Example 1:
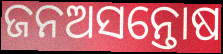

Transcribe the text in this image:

ଜନଅସନ୍ତୋଷ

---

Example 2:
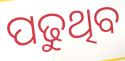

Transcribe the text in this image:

ପଢୁଥିବ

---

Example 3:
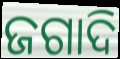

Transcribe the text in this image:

ଜଗାଦି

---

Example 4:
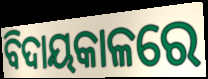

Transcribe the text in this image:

ବିଦାୟକାଳରେ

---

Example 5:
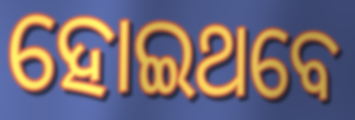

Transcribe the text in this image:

ହୋଇଥବେ